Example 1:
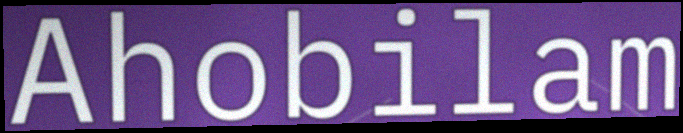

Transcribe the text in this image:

Ahobilam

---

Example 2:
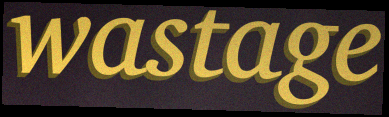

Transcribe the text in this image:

wastage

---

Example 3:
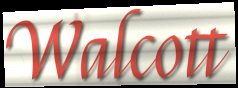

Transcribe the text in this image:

Walcott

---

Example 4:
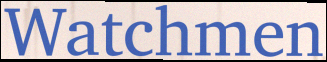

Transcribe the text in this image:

Watchmen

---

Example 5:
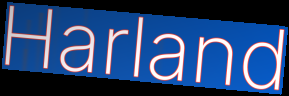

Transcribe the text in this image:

Harland